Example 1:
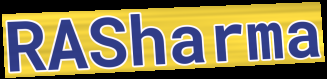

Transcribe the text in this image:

RASharma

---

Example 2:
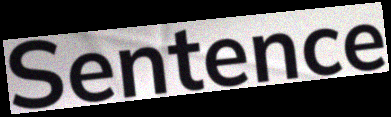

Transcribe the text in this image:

Sentence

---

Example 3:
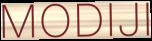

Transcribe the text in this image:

MODIJI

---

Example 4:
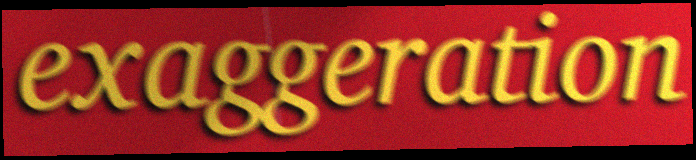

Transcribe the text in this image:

exaggeration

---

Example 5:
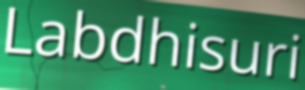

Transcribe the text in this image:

Labdhisuri